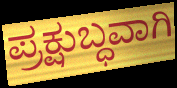
ಪ್ರಕ್ಷುಬ್ಧವಾಗಿ